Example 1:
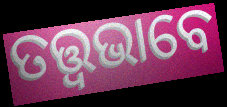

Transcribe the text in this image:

ତତ୍ତ୍ଵଭାବେ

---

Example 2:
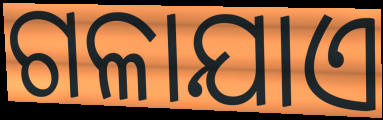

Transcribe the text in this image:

ଗଳାଯାଏ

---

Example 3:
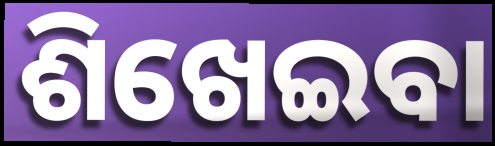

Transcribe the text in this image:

ଶିଖେଇବା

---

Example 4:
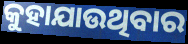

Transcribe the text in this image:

କୁହାଯାଉଥିବାର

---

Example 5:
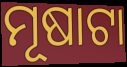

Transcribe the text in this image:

ମୂଷାଟା